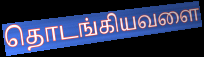
தொடங்கியவளை